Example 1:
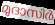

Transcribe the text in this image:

മുദാസിർ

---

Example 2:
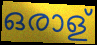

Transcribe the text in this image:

ഒരാള്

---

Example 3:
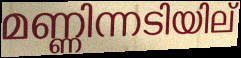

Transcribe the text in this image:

മണ്ണിന്നടിയില്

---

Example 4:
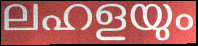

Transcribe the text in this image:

ലഹളയും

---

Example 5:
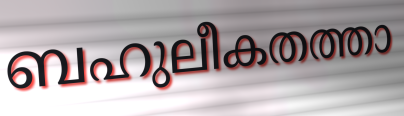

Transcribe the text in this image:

ബഹുലീകതത്താ